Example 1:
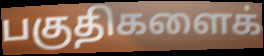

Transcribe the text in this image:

பகுதிகளைக்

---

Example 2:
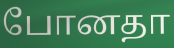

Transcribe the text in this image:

போனதா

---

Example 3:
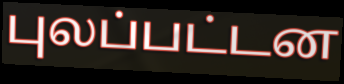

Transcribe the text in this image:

புலப்பட்டன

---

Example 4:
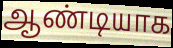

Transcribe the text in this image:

ஆண்டியாக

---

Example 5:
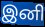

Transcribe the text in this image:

இனி